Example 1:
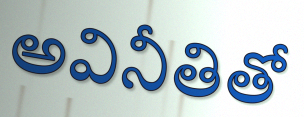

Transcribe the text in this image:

అవినీతితో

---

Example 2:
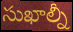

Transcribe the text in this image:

సుఖాల్నీ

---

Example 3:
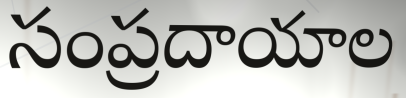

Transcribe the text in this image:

సంప్రదాయాల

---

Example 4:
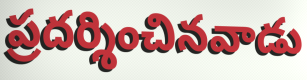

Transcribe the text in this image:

ప్రదర్శించినవాడు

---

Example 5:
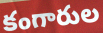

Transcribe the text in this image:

కంగారుల